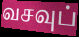
வசவுப்